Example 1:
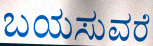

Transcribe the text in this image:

ಬಯಸುವರೆ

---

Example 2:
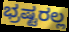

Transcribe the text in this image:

ಭ್ರಷ್ಟರಲ್ಲ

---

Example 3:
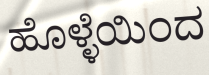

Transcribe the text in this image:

ಹೊಳ್ಳೆಯಿಂದ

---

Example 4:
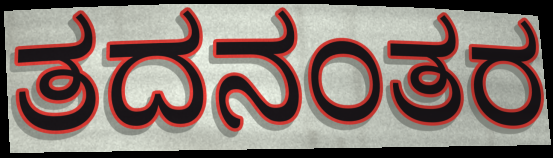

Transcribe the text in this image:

ತದನಂತರ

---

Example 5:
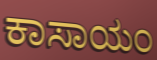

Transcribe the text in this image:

ಕಾಸಾಯಂ